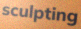
sculpting